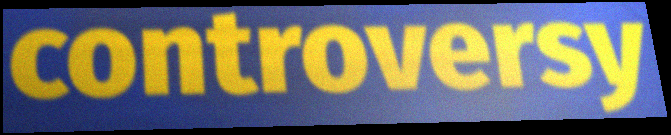
controversy